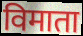
विमाता